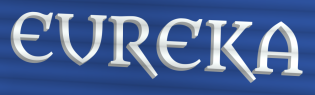
EUREKA